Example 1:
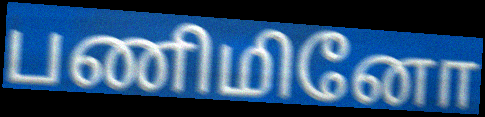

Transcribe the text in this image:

பணிமினோ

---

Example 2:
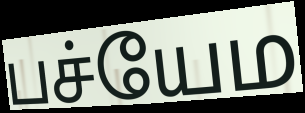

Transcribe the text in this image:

பச்யேம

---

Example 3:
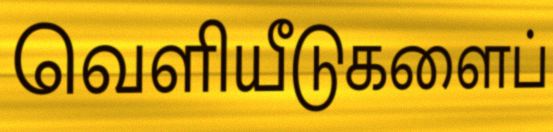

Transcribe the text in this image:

வெளியீடுகளைப்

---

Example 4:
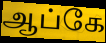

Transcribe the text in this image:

ஆப்கே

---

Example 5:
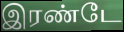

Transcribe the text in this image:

இரண்டே